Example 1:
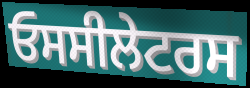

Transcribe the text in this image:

ਓਸਸੀਲੇਟਰਸ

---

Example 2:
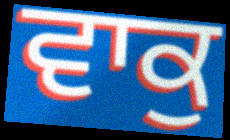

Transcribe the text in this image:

ਵਾਕੁ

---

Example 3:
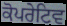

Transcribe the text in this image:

ਕੋਪਰੇਟਿਵ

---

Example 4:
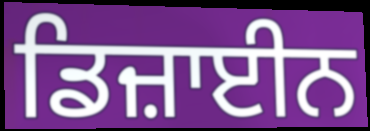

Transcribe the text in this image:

ਡਿਜ਼ਾਈਨ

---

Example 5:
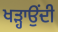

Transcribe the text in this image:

ਖੜ੍ਹਾਉਂਦੀ